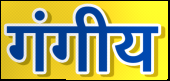
गंगीय